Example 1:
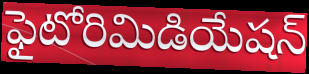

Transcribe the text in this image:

ఫైటోరిమిడియేషన్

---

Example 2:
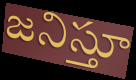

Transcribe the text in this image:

జనిస్తూ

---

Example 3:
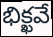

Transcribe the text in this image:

భిక్ఖవే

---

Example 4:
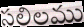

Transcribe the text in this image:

సలిలము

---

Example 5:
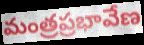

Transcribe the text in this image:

మంత్రప్రభావేణ